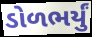
ડોળભર્યું